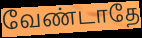
வேண்டாதே